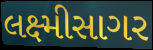
લક્ષ્મીસાગર